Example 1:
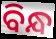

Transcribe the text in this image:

ବିନ୍ଧ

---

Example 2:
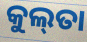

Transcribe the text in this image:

କୁଲ୍‌ତା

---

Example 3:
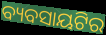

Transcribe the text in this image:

ବ୍ୟବସାୟଟିର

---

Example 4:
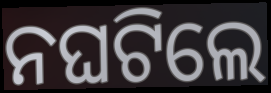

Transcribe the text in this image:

ନଘଟିଲେ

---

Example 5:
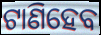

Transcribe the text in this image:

ଟାଣିହେବ